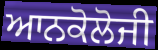
ਆਨਕੋਲੋਜੀ